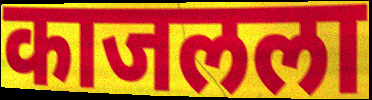
काजलला